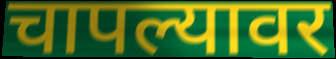
चापल्यावर